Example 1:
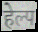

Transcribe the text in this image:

हेल्प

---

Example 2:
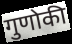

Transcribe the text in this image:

गुणोकी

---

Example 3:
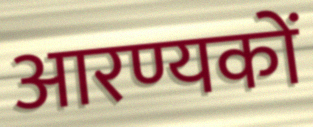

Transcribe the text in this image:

आरण्यकों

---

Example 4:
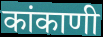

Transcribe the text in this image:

कांकाणी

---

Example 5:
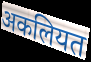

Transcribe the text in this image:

अकलियत